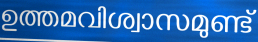
ഉത്തമവിശ്വാസമുണ്ട്